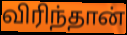
விரிந்தான்